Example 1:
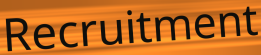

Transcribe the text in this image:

Recruitment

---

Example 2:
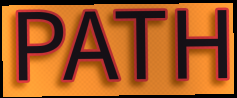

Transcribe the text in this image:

PATH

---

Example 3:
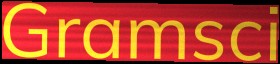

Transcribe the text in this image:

Gramsci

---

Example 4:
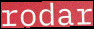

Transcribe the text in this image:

rodar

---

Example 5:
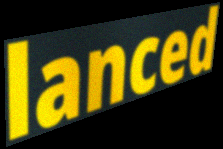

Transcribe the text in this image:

lanced